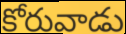
కోరువాడు